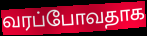
வரப்போவதாக